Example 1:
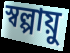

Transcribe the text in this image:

স্বল্পায়ু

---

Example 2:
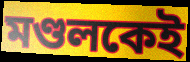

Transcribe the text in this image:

মণ্ডলকেই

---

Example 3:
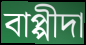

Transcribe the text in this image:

বাপ্পীদা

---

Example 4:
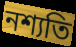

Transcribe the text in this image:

নশ্যতি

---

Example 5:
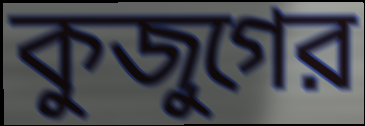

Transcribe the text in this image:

কুজুগের